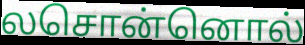
லசொன்னொல்